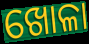
ଖୋଳା